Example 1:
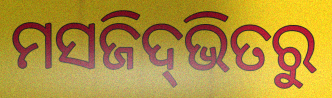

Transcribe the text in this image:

ମସଜିଦ୍‌ଭିତରୁ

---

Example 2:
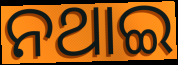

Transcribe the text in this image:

ନଥାଇ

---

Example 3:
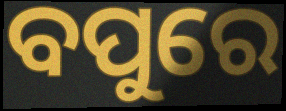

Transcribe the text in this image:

ବପୁରେ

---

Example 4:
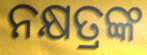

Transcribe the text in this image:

ନକ୍ଷତ୍ରଙ୍କ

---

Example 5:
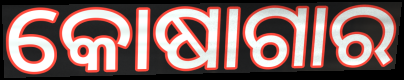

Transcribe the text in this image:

କୋଷାଗାର